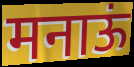
मनाऊं